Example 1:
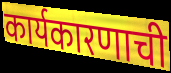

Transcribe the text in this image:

कार्यकारणाची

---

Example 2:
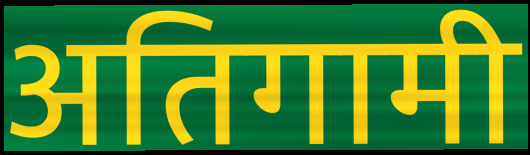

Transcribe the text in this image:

अतिगामी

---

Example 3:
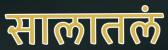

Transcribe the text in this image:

सालातलं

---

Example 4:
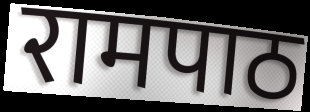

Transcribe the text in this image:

रामपाठ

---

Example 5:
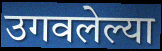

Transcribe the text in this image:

उगवलेल्या